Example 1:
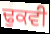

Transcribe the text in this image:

ਢੁਕਵੀ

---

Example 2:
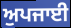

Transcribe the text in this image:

ਅੁਪਜਾਈ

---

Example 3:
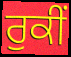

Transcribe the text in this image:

ਰੁਕੀਂ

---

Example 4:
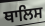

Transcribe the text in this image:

ਥਾਲਿਸ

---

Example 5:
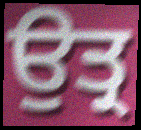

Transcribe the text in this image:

ਉਤ੍ਰ